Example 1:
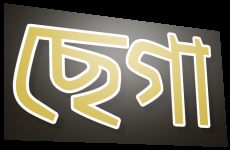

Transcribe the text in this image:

ছেগা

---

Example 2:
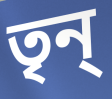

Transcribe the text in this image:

তৃন্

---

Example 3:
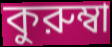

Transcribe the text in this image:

কুৰুম্বা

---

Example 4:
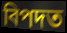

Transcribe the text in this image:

বিপদত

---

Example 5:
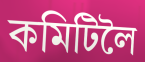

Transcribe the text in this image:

কমিটিলৈ